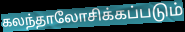
கலந்தாலோசிக்கப்படும்